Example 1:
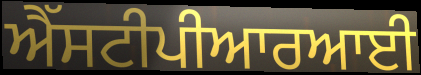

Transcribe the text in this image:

ਐੱਸਟੀਪੀਆਰਆਈ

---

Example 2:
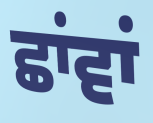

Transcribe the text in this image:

ਛਾਂਵਾਂ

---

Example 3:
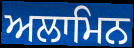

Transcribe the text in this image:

ਅਲਾਮਿਨ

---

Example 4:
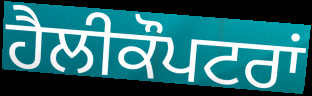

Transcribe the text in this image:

ਹੈਲੀਕੌਪਟਰਾਂ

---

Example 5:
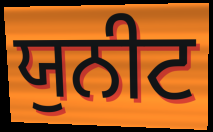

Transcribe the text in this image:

ਯੁਨੀਟ